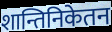
शान्तिनिकेतन